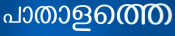
പാതാളത്തെ